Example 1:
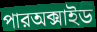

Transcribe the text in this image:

পারঅক্সাইড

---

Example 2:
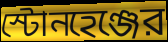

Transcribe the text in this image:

স্টোনহেঞ্জের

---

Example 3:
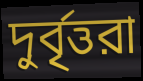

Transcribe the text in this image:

দুর্বৃত্তরা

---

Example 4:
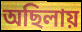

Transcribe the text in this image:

অছিলায়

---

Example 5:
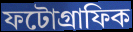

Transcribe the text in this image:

ফটোগ্রাফিক